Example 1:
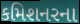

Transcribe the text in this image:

કમિશનરના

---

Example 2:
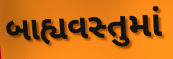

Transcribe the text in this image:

બાહ્યવસ્તુમાં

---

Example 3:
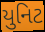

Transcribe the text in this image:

યુનિટ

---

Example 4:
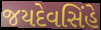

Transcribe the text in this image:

જયદેવસિંહે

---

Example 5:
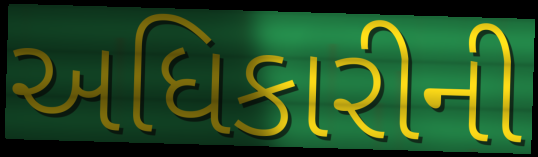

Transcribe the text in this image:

અધિકારીની